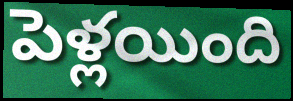
పెళ్లయింది